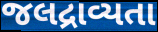
જલદ્રાવ્યતા